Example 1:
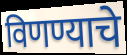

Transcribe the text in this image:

विणण्याचे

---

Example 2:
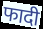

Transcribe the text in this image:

फादी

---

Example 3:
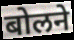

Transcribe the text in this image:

बोलने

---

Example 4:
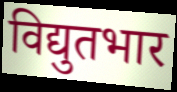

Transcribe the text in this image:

विद्युतभार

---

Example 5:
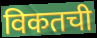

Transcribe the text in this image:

विकतची